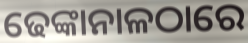
ଢେଙ୍କାନାଳଠାରେ